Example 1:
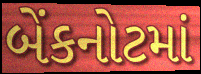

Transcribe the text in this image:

બેંકનોટમાં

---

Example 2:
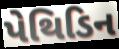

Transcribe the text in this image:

પેથિડિન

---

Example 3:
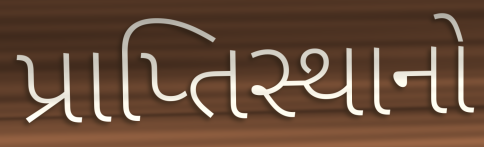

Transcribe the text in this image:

પ્રાપ્તિસ્થાનો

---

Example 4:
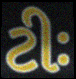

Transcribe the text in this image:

ટીઃ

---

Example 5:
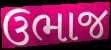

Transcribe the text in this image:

ઉભાજ